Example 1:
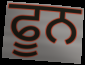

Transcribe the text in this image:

ਫੂਨ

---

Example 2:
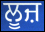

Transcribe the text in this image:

ਲੂਜ਼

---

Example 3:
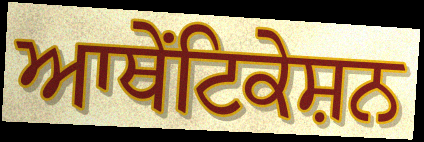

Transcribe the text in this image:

ਆਥੇਂਟਿਕੇਸ਼ਨ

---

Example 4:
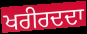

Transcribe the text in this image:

ਖਰੀਰਦਦਾ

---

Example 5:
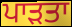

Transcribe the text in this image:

ਪਾੜਤਾ